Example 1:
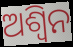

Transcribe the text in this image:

ଅଶ୍ଵିନ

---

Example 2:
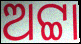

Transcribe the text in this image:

ଅଟ୍ଟା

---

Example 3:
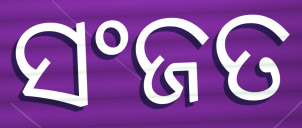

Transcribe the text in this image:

ସଂଜତ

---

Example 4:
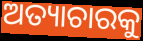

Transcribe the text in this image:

ଅତ୍ୟାଚାରକୁ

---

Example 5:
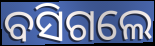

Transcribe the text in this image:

ବସିଗଲେ